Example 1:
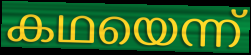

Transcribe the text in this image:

കഥയെന്ന്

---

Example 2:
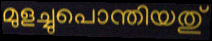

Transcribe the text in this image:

മുളച്ചുപൊന്തിയതു്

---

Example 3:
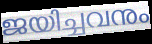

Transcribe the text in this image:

ജയിച്ചവനും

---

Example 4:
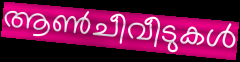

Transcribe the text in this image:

ആൺചീവീടുകൾ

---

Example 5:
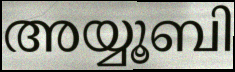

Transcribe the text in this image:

അയ്യൂബി